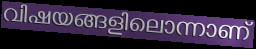
വിഷയങ്ങളിലൊന്നാണ്